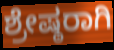
ಶ್ರೇಷ್ಠರಾಗಿ